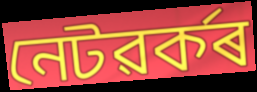
নেটৱৰ্কৰ